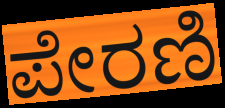
ಪೇರಣಿ